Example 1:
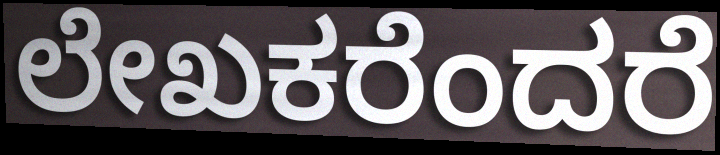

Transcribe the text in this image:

ಲೇಖಕರೆಂದರೆ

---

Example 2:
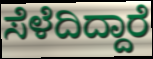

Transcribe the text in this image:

ಸೆಳೆದಿದ್ದಾರೆ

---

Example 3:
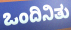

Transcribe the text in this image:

ಒಂದಿನಿತು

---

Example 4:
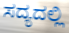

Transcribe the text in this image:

ಸದ್ಯದಲ್ಲಿ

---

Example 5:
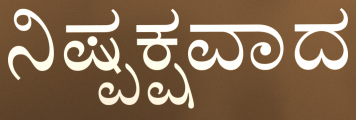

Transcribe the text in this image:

ನಿಷ್ಪಕ್ಷವಾದ